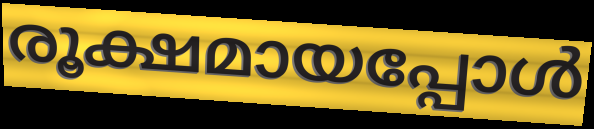
രൂക്ഷമായപ്പോൾ